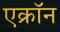
एक्रॉन